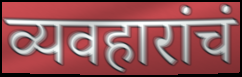
व्यवहारांचं